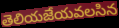
తెలియజేయవలసిన